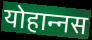
योहान्नस